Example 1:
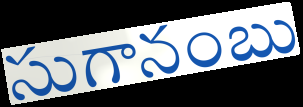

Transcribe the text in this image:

సుగానంబు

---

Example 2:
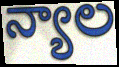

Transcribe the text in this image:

న్యాల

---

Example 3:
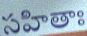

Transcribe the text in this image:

సహితాః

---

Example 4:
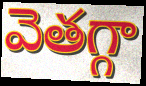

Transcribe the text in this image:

వెతగ్గా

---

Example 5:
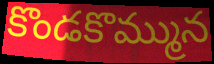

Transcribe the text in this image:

కొండకొమ్మున